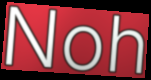
Noh